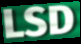
LSD